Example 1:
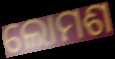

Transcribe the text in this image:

ଲୋମଶ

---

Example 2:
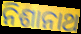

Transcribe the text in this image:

ନିଶାନାଥ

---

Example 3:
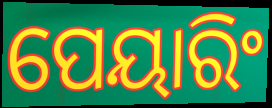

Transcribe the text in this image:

ପେୟାରିଂ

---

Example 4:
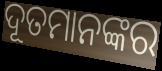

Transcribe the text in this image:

ଦୂତମାନଙ୍କର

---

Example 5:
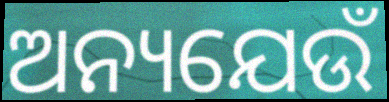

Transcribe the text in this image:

ଅନ୍ୟଯେଉଁ